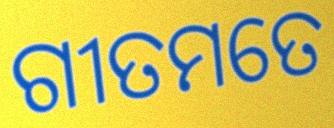
ଗୀତମତେ